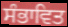
ਸੰਭਾਵਿਤ